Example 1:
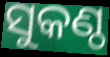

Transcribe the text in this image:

ସୁକଣ୍ଠ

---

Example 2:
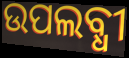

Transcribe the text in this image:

ଉପଲବ୍ଧୀ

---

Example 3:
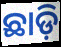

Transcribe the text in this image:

ଛାଡ଼ି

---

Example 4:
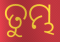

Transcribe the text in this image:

ତୁମ୍ଭ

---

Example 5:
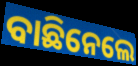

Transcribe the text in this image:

ବାଛିନେଲେ